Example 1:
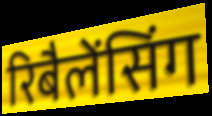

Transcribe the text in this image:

रिबैलेंसिंग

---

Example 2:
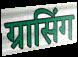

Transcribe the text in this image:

ग्रासिंग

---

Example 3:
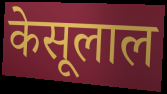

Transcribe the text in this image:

केसूलाल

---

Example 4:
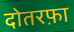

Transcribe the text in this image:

दोतरफ़ा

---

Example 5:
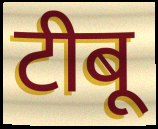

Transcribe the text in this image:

टीबू